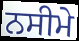
ਨਸੀਮੇ